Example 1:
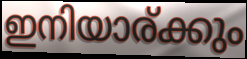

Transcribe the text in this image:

ഇനിയാര്ക്കും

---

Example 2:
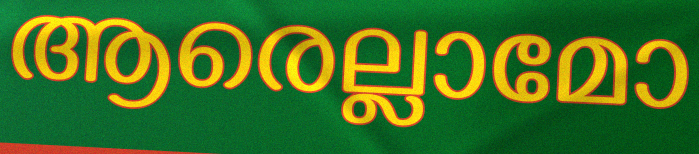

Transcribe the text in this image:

ആരെല്ലാമോ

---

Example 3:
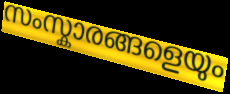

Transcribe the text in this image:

സംസ്കാരങ്ങളെയും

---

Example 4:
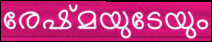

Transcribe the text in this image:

രേഷ്മയുടേയും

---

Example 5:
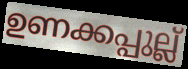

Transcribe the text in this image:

ഉണക്കപ്പുല്ല്